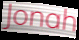
Jonah